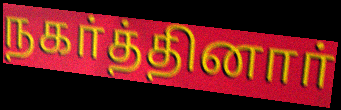
நகர்த்தினார்